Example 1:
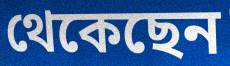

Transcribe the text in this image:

থেকেছেন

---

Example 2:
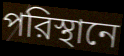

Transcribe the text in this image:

পরিস্থানে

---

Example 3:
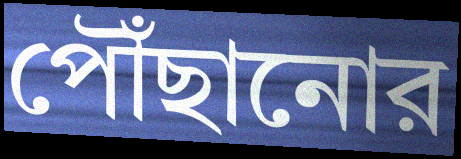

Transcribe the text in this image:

পৌঁছানোর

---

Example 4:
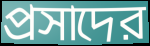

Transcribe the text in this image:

প্রসাদের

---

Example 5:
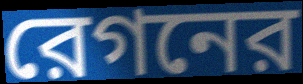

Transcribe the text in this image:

রেগনের